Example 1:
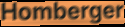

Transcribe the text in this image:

Homberger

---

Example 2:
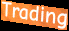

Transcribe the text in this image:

Trading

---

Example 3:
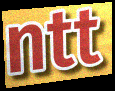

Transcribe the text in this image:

ntt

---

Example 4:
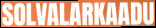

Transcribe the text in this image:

SOLVALARKAADU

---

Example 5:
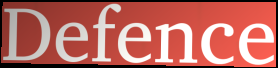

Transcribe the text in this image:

Defence